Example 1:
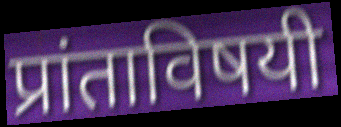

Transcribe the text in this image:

प्रांताविषयी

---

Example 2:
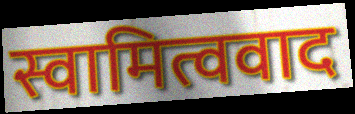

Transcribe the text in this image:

स्वामित्ववाद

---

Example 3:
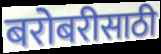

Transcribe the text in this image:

बरोबरीसाठी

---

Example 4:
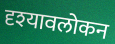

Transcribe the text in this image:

दृश्‍यावलोकन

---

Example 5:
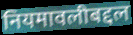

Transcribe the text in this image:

नियमावलीबद्दल